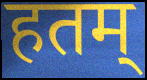
हतम्